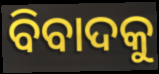
ବିବାଦକୁ